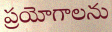
ప్రయోగాలను